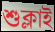
শুক্লাই